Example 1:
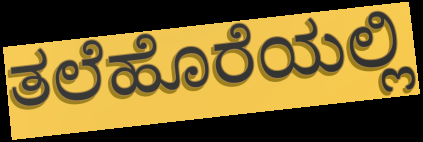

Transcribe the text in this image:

ತಲೆಹೊರೆಯಲ್ಲಿ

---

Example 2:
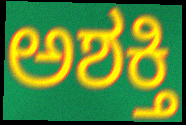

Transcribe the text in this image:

ಅಶಕ್ತಿ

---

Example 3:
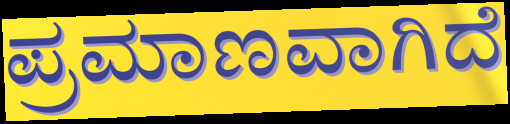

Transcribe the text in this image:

ಪ್ರಮಾಣವಾಗಿದೆ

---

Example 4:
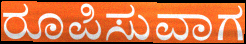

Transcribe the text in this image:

ರೂಪಿಸುವಾಗ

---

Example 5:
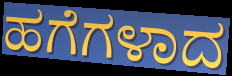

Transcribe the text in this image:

ಹಗೆಗಳಾದ